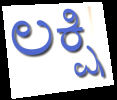
ಲಕ್ಷಿ